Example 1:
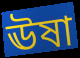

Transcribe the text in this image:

ঊষা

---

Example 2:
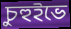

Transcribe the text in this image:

চুহুইভে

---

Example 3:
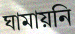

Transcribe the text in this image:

ঘামায়নি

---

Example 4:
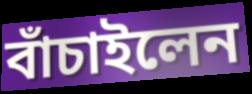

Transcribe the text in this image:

বাঁচাইলেন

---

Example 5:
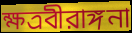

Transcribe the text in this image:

ক্ষত্রবীরাঙ্গনা